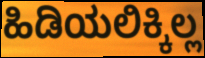
ಹಿಡಿಯಲಿಕ್ಕಿಲ್ಲ